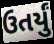
ઉતર્યું